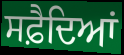
ਸਫ਼ੈਦਿਆਂ